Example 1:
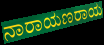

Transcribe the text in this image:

ನಾರಾಯಣರಾಯ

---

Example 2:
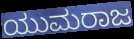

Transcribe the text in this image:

ಯುಮರಾಜ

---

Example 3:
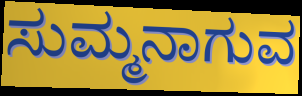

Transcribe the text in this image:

ಸುಮ್ಮನಾಗುವ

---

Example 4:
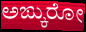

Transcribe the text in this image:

ಅಙ್ಕುರೋ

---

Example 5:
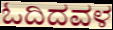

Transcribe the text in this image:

ಓದಿದವಳ